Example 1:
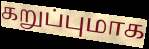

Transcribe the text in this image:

கறுப்புமாக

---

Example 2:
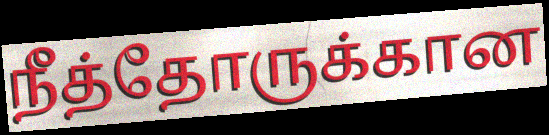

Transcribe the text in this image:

நீத்தோருக்கான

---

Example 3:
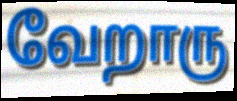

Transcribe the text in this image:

வேறாரு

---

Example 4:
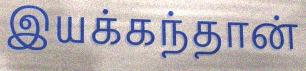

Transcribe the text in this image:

இயக்கந்தான்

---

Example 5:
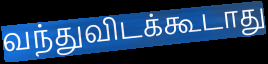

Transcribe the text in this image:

வந்துவிடக்கூடாது